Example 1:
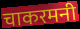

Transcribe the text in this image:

चाकरमनी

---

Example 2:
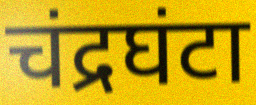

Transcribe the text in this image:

चंद्रघंटा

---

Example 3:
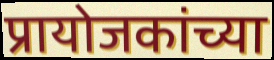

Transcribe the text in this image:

प्रायोजकांच्या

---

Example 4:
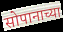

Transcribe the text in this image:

सोपानाच्या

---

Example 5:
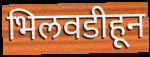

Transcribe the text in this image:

भिलवडीहून